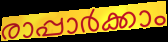
രാപ്പാർക്കാം